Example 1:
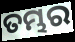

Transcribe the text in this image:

ତମ୍ଭର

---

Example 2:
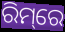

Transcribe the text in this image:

ରିମ୍‌ରେ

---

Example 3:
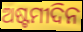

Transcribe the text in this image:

ଅଷ୍ଟମୀଦିନ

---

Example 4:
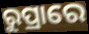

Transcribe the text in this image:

ରୁପ୍ରାରେ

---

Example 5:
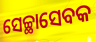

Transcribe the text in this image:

ସେଚ୍ଛାସେବକ